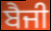
ਬੈਜੀ